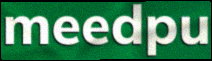
meedpu